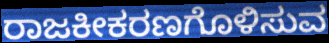
ರಾಜಕೀಕರಣಗೊಳಿಸುವ